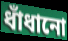
ধাঁধানো